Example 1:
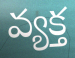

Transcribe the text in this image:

వ్యక్త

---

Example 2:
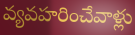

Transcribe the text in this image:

వ్యవహరించేవాళ్లు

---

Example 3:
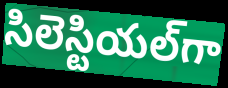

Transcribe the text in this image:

సిలెస్టియల్‌గా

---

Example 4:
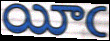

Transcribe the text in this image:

యీఁ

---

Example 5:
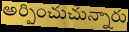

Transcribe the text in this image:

అర్పించుచున్నారు